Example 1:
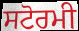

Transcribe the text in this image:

ਸਟੋਰਮੀ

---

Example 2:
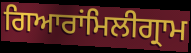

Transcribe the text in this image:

ਗਿਆਰਾਂਮਿਲੀਗ੍ਰਾਮ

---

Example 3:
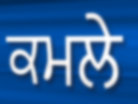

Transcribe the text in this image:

ਕਮਲੇ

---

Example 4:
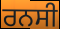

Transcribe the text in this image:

ਰਨਸੀ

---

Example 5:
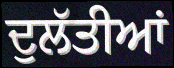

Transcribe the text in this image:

ਦੁਲੱਤੀਆਂ